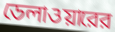
ডেলাওয়ারের